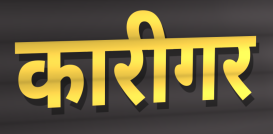
कारीगर